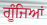
ਗੂੰਜਿਆਂ